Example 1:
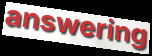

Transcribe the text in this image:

answering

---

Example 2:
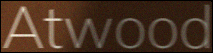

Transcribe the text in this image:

Atwood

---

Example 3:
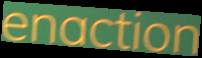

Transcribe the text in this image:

enaction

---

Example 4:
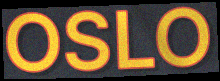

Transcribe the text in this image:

OSLO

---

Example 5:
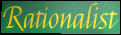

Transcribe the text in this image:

Rationalist